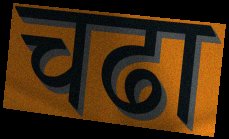
चढा